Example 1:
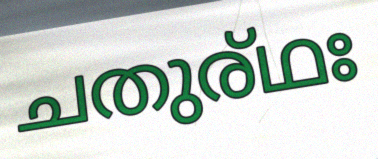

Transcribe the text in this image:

ചതുര്ഥഃ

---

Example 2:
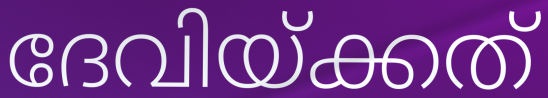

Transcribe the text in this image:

ദേവിയ്ക്കത്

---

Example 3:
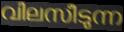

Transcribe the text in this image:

വിലസീടുന്ന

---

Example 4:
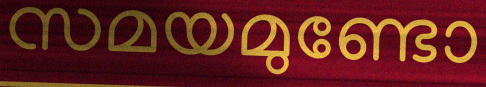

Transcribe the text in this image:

സമയമുണ്ടോ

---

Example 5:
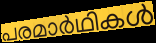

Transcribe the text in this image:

പരമാർഥികൾ